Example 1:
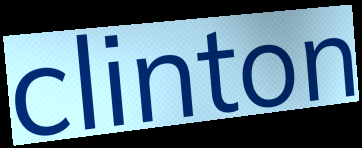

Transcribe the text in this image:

clinton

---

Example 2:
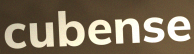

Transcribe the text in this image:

cubense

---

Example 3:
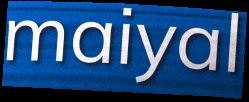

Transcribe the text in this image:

maiyal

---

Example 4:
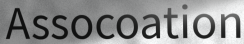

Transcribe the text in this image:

Assocoation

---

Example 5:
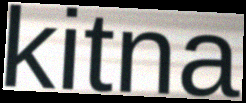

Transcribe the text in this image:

kitna